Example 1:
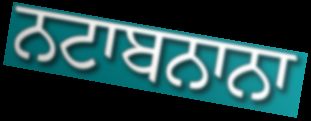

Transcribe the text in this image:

ਨਟਾਬਨਾਨਾ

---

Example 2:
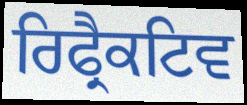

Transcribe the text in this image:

ਰਿਫ੍ਰੈਕਟਿਵ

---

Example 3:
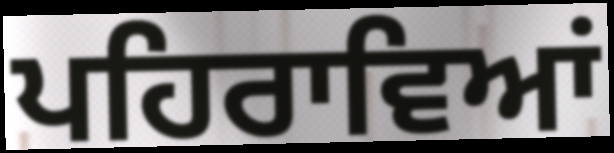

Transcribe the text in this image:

ਪਹਿਰਾਵਿਆਂ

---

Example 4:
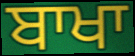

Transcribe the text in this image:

ਬਾਖਾ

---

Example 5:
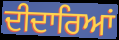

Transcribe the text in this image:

ਦੀਦਾਰਿਆਂ